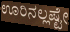
ಊರಿನಲ್ಲಷ್ಟೇ